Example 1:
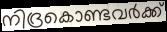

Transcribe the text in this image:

നിദ്രകൊണ്ടവർക്ക്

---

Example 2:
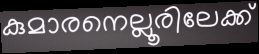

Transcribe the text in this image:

കുമാരനെല്ലൂരിലേക്ക്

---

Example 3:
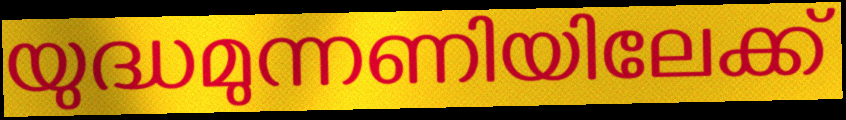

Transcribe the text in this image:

യുദ്ധമുന്നണിയിലേക്ക്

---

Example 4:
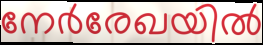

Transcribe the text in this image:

നേർരേഖയിൽ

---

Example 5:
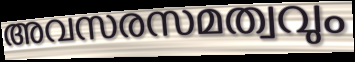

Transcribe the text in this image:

അവസരസമത്വവും